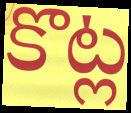
కొట్ల